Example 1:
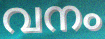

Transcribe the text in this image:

വനം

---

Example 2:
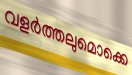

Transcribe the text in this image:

വളർത്തലുമൊക്കെ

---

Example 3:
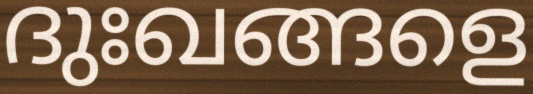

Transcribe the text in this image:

ദുഃഖങ്ങളെ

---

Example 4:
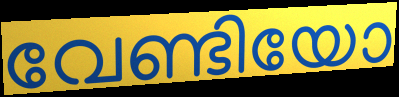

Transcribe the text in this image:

വേണ്ടിയോ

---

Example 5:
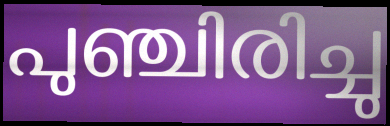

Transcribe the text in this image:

പുഞ്ചിരിച്ചു